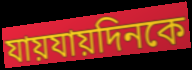
যায়যায়দিনকে